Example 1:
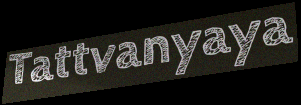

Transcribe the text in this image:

Tattvanyaya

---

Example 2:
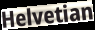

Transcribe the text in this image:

Helvetian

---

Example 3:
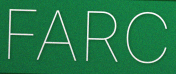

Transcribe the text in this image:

FARC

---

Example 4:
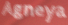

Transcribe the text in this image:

Agneya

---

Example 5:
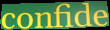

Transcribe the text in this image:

confide